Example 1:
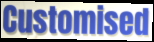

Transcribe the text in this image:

Customised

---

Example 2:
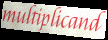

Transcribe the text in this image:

multiplicand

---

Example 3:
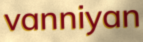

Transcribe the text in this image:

vanniyan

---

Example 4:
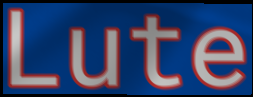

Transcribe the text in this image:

Lute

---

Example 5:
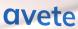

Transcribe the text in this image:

avete